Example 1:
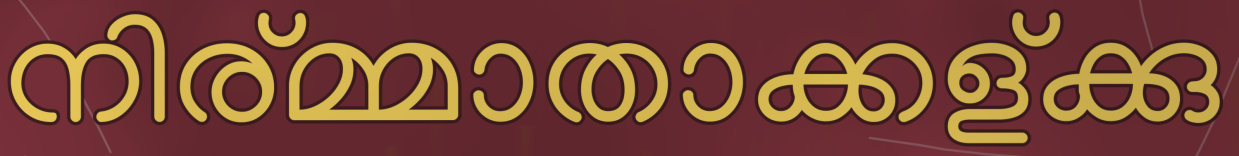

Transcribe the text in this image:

നിര്മ്മാതാക്കള്ക്കു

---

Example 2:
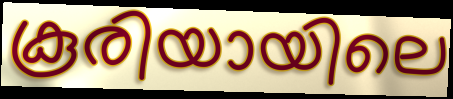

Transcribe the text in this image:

കൂരിയായിലെ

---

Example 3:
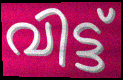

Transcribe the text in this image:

വിട്ട്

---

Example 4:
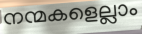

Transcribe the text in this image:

നന്മകളെല്ലാം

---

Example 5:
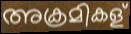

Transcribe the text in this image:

അക്രമികള്